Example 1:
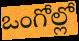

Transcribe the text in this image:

ఒంగోల్లో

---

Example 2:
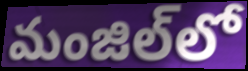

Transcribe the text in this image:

మంజిల్‌లో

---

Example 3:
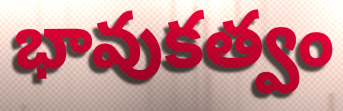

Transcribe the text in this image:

భావుకత్వం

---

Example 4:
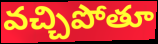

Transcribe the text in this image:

వచ్చిపోతూ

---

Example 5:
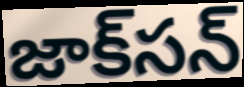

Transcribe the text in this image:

జాక్‌సన్